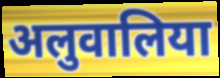
अलुवालिया